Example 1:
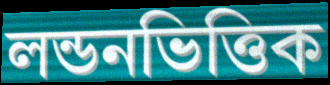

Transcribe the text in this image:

লন্ডনভিত্তিক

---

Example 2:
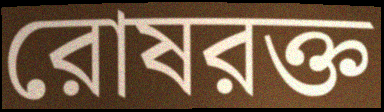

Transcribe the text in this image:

রোষরক্ত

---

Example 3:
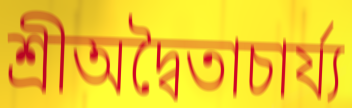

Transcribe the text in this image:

শ্রীঅদ্বৈতাচার্য্য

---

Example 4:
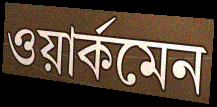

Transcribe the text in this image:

ওয়ার্কমেন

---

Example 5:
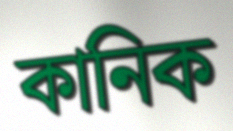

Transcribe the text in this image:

কানিক